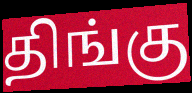
திங்கு